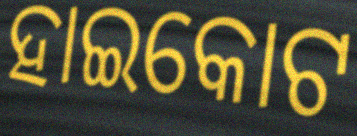
ହାଇକୋଟ